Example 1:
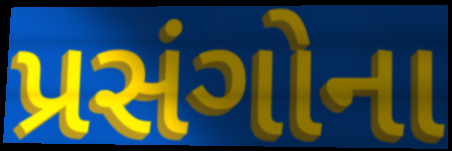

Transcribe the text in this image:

પ્રસંગોના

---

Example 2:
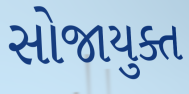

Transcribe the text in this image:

સોજાયુક્ત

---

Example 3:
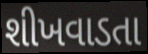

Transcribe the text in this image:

શીખવાડતા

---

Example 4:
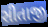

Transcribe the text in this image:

સીતાજી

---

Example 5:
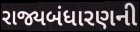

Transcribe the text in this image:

રાજ્યબંધારણની